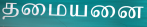
தமையனை